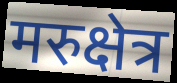
मरुक्षेत्र